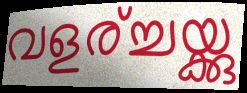
വളര്ച്ചയ്ക്കു